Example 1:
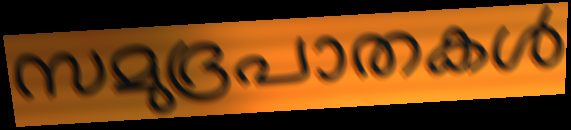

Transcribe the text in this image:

സമുദ്രപാതകൾ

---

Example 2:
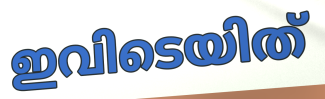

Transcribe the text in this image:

ഇവിടെയിത്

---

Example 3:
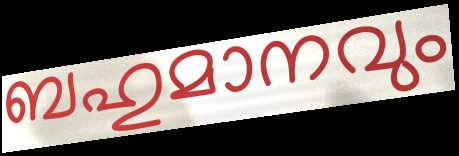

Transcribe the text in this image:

ബഹുമാനവും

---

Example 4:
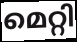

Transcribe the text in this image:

മെറ്റി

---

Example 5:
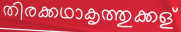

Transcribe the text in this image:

തിരക്കഥാകൃത്തുക്കള്